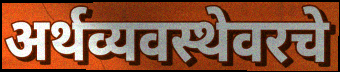
अर्थव्यवस्थेवरचे